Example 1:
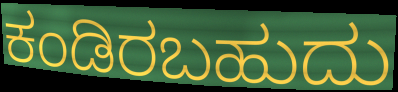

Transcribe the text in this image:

ಕಂಡಿರಬಹುದು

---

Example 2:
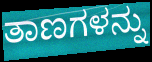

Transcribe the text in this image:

ತಾಣಗಳನ್ನು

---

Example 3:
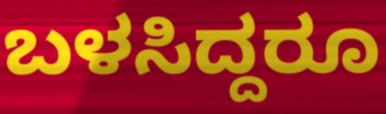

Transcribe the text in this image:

ಬಳಸಿದ್ದರೂ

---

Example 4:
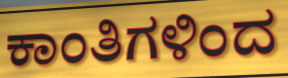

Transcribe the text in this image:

ಕಾಂತಿಗಳಿಂದ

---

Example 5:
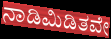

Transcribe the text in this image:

ನಾಡಿಮಿಡಿತವೇ